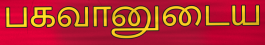
பகவானுடைய